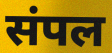
संपल